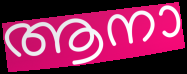
ആനാ